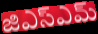
జిఎస్ఎమ్